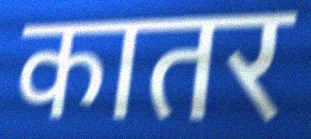
कातर